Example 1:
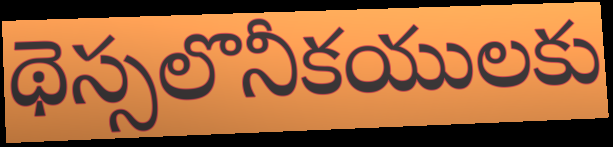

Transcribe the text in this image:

థెస్సలొనీకయులకు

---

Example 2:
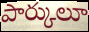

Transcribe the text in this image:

పార్కులూ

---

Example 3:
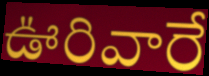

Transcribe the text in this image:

ఊరివారే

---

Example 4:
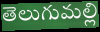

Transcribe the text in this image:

తెలుగుమల్లి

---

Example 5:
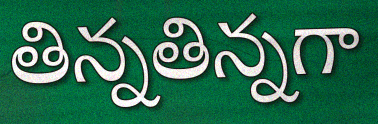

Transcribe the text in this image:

తిన్నతిన్నగా